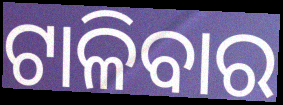
ଟାଳିବାର